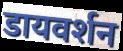
डायवर्शन